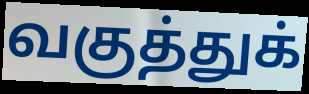
வகுத்துக்